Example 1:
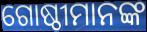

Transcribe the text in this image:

ଗୋଷ୍ଠୀମାନଙ୍କ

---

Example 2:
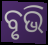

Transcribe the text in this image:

ବୃଭି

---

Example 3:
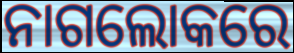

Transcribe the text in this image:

ନାଗଲୋକରେ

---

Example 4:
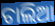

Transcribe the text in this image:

ଚାଲିଆ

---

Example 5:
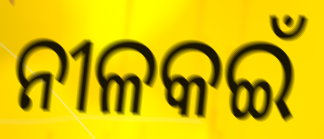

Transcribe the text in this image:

ନୀଳକଇଁ